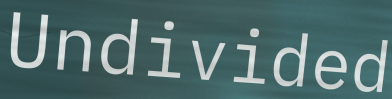
Undivided